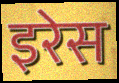
इरेस